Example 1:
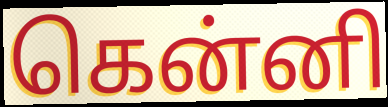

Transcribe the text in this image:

கென்னி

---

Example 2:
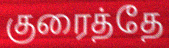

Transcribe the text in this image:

குரைத்தே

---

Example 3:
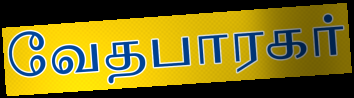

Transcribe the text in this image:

வேதபாரகர்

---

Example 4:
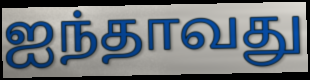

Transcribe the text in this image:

ஐந்தாவது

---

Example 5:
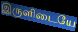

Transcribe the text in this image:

இருளிடையே